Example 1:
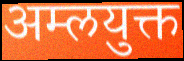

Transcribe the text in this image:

अम्लयुक्त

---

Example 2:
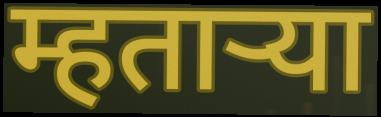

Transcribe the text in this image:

म्हताऱ्या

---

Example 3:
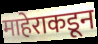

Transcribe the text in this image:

माहेराकडून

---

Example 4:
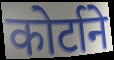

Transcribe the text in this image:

कोर्टाने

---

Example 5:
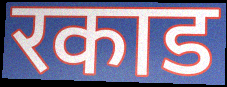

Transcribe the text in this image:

रकाड